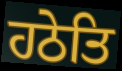
ਹਠੇਤਿ